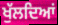
ਖੁੱਲਦਿਆਂ